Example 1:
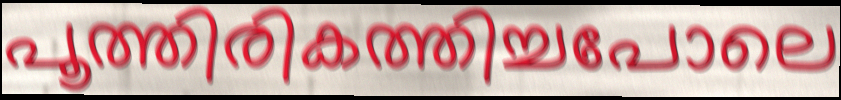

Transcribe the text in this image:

പൂത്തിരികത്തിച്ചപോലെ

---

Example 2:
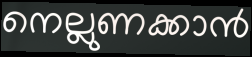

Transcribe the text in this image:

നെല്ലുണക്കാൻ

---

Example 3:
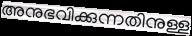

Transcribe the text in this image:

അനുഭവിക്കുന്നതിനുള്ള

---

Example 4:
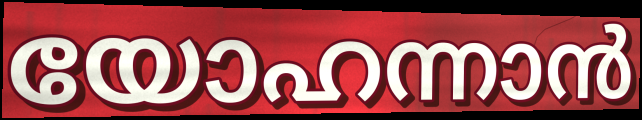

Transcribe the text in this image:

യോഹന്നാൻ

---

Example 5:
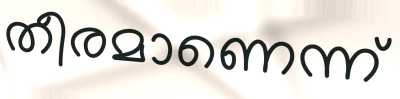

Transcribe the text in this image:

തീരമാണെന്ന്